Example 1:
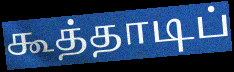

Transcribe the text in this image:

கூத்தாடிப்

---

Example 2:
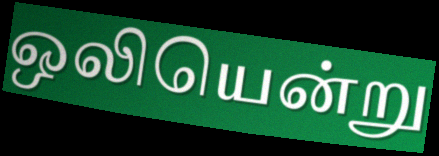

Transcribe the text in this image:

ஒலியென்று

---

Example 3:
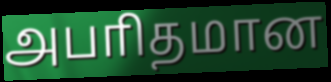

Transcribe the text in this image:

அபரிதமான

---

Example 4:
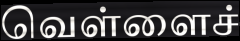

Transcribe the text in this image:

வெள்ளைச்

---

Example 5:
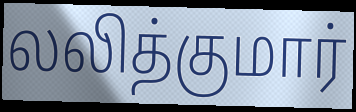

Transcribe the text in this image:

லலித்குமார்